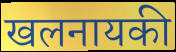
खलनायकी